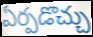
ఏర్పడొచ్చు